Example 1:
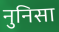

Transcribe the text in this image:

नुनिसा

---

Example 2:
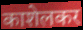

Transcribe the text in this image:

काशेलकर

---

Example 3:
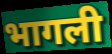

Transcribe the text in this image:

भागली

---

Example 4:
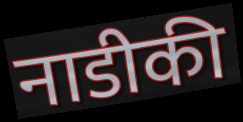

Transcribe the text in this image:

नाडीकी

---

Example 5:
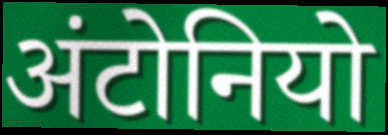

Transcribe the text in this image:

अंटोनियो